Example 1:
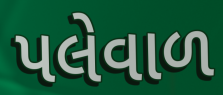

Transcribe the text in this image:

પલેવાળ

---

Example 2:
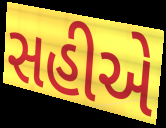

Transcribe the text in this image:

સહીએ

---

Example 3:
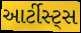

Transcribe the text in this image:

આર્ટીસ્ટ્સ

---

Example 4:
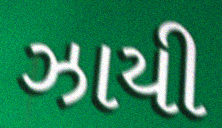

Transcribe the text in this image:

ઝાયી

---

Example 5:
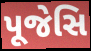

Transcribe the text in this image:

પૂજેસિ